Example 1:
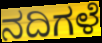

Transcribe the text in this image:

ನದಿಗಳೆ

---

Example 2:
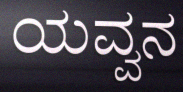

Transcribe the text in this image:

ಯವ್ವನ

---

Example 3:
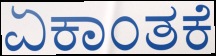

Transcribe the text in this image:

ಏಕಾಂತಕೆ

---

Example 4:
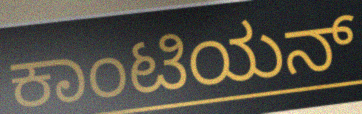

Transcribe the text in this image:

ಕಾಂಟಿಯನ್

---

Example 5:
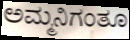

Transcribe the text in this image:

ಅಮ್ಮನಿಗಂತೂ